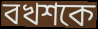
বখশকে